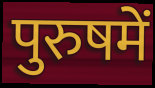
पुरुषमें